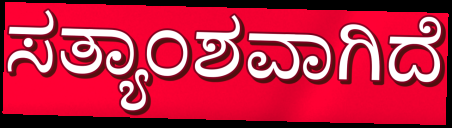
ಸತ್ಯಾಂಶವಾಗಿದೆ